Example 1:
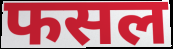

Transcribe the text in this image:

फसल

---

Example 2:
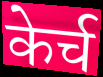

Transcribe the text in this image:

केर्च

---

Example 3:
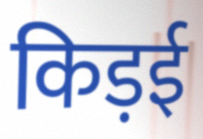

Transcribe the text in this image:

किड़ई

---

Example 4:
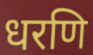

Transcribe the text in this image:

धरणि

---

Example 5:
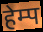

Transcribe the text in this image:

हेम्प